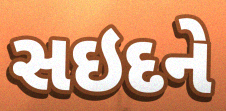
સઇદને